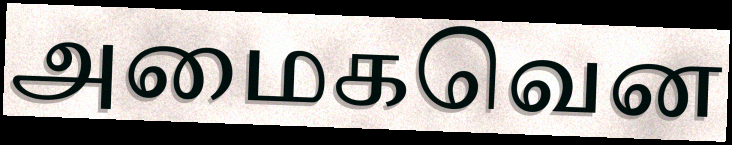
அமைகவென